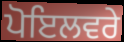
ਪੋਇਲਵਰੇ